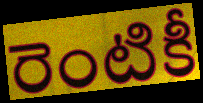
రెంటికీ